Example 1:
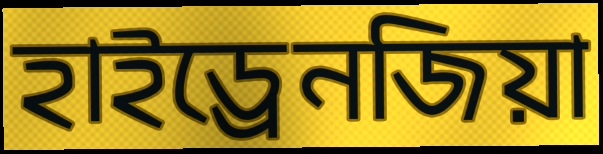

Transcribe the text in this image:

হাইড্রেনজিয়া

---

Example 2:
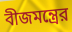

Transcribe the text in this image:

বীজমন্ত্রের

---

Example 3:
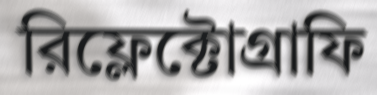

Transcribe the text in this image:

রিফ্লেক্টোগ্রাফি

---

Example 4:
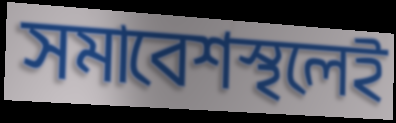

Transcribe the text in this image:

সমাবেশস্থলেই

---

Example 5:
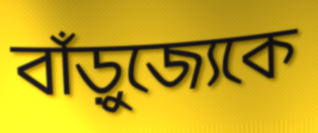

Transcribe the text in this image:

বাঁড়ুজ্যেকে